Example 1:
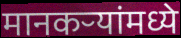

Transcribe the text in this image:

मानकऱ्यांमध्ये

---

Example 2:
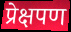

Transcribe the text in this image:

प्रेक्षपण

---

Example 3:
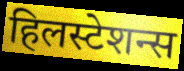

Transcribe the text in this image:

हिलस्टेशन्स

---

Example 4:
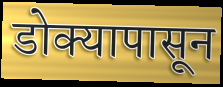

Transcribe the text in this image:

डोक्यापासून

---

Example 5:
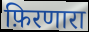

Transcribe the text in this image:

फ़िरणारा